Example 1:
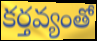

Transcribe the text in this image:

కర్తవ్యంతో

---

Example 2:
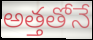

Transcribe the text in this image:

అత్తతోనే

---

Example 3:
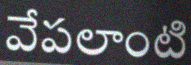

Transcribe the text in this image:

వేపలాంటి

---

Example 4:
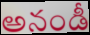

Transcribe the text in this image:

అనండీ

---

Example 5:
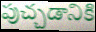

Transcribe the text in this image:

పుచ్చడానికి